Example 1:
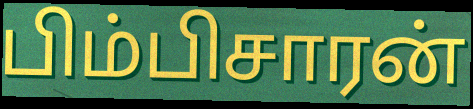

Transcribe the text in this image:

பிம்பிசாரன்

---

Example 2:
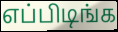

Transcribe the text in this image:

எப்பிடிங்க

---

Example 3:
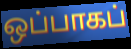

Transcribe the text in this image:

ஒப்பாகப்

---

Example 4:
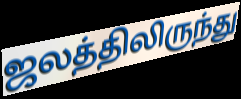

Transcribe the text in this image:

ஜலத்திலிருந்து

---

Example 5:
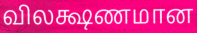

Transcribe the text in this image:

விலக்ஷணமான